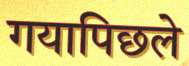
गयापिछले